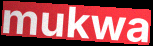
mukwa